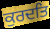
ਕੁਰਦਤਿ